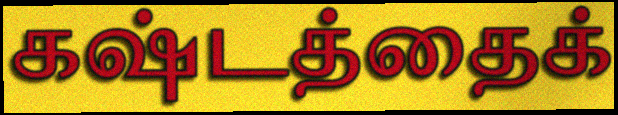
கஷ்டத்தைக்